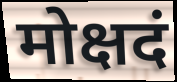
मोक्षदं